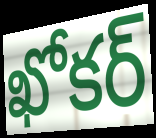
ఖోకర్